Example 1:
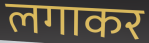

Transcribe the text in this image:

लगाकर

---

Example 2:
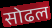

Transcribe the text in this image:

सोढल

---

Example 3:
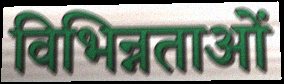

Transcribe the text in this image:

विभिन्नताओं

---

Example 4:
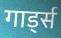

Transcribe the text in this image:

गार्ड्स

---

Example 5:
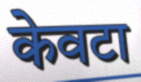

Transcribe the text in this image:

केवटा